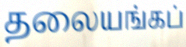
தலையங்கப்